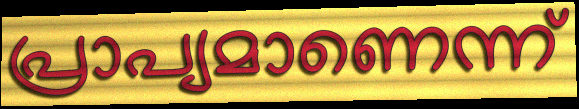
പ്രാപ്യമാണെന്ന്